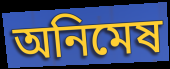
অনিমেষ